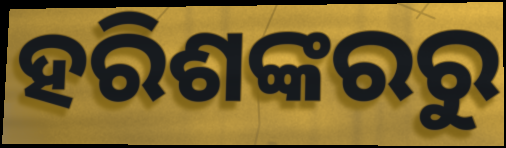
ହରିଶଙ୍କରରୁ